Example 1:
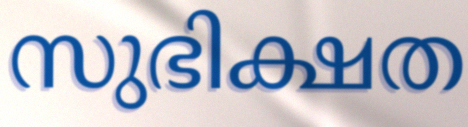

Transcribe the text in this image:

സുഭിക്ഷത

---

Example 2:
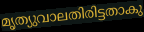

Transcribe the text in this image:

മൃത്യുവാലതിരിട്ടതാകു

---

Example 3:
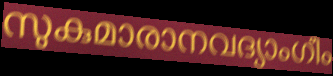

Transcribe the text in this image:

സുകുമാരാനവദ്യാംഗീം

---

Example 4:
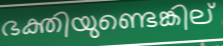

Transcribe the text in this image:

ഭക്തിയുണ്ടെങ്കില്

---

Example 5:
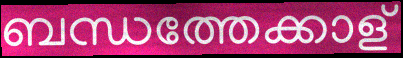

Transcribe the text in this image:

ബന്ധത്തേക്കാള്